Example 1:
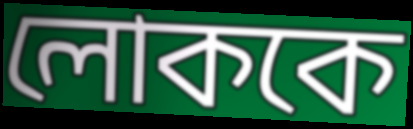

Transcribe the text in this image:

লোককে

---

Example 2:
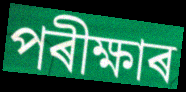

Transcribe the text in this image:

পৰীক্ষাৰ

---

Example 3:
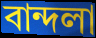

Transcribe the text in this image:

বান্দলা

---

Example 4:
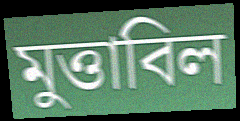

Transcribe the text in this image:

মুত্তাবিল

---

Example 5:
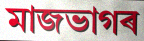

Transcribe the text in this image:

মাজভাগৰ